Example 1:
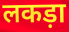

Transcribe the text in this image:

लकड़ा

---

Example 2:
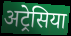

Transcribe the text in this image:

अट्रेसिया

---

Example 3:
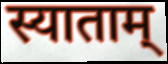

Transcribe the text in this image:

स्याताम्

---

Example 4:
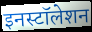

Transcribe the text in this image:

इनस्टॉलेशन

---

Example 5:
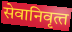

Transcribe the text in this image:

सेवानिवृत्‍त